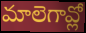
మాలెగావ్లో